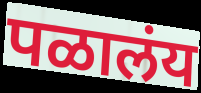
पळालंय